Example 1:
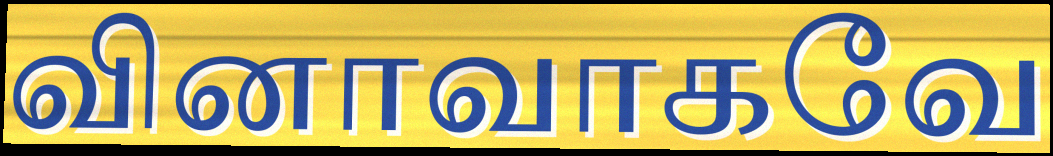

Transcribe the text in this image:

வினாவாகவே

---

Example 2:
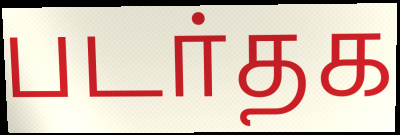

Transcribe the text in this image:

படர்தக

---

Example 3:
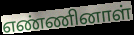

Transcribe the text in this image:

எண்ணினாள்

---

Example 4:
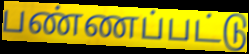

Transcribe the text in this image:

பண்ணப்பட்டு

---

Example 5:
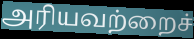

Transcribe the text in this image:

அரியவற்றைச்